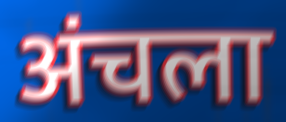
अंचला